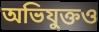
অভিযুক্তও